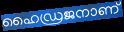
ഹൈഡ്രജനാണ്